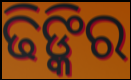
ଢିଙ୍କିର